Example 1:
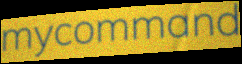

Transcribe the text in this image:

mycommand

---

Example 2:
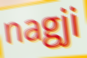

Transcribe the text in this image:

nagji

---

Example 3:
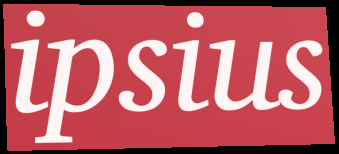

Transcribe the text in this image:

ipsius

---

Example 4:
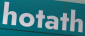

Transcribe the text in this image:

hotath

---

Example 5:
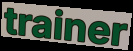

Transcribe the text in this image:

trainer